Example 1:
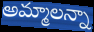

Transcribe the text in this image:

అమ్మాలన్నా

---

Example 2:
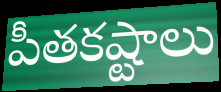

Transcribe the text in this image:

పీతకష్టాలు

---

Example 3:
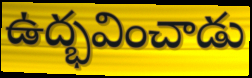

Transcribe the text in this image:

ఉద్భవించాడు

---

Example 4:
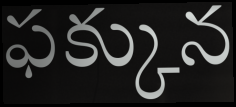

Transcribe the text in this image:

ఫక్కున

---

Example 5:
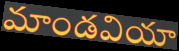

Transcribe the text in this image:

మాండవియా